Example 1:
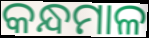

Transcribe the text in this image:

କନ୍ଧମାଳ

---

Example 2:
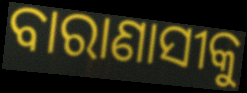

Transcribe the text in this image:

ବାରାଣାସୀକୁ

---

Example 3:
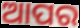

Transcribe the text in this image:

ଆପର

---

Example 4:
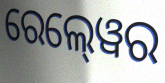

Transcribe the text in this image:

ରେଲ୍‍ୱେର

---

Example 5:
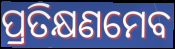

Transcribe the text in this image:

ପ୍ରତିକ୍ଷଣମେବ